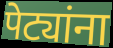
पेट्यांना